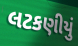
લટકણીયું